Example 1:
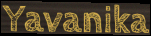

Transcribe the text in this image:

Yavanika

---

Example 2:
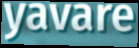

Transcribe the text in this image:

yavare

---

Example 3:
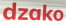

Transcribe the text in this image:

dzako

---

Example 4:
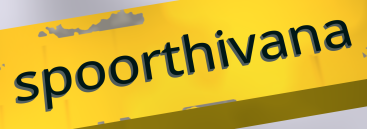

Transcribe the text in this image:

spoorthivana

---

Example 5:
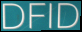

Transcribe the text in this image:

DFID